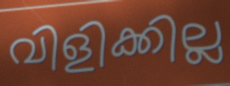
വിളിക്കില്ല